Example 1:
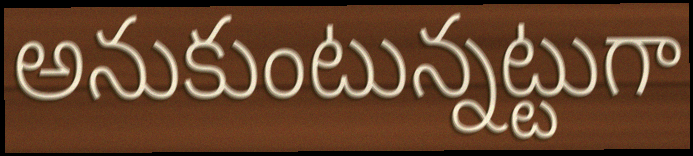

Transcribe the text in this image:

అనుకుంటున్నట్టుగా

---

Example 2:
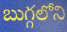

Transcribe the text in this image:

బుగ్గలోని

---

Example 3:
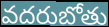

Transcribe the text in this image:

వదరుబోతు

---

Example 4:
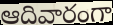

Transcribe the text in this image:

ఆదివారంగా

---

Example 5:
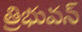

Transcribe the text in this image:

త్రిభువన్